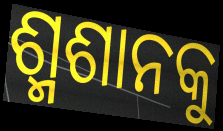
ଶ୍ମଶାନକୁ